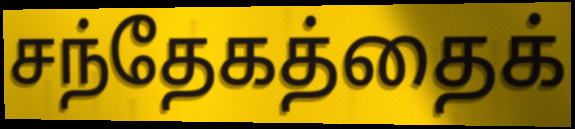
சந்தேகத்தைக்